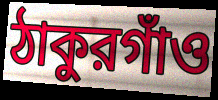
ঠাকুরগাঁও